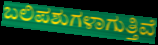
ಬಲಿಪಶುಗಳಾಗುತ್ತಿವೆ